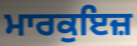
ਮਾਰਕੁਇਜ਼